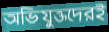
অভিযুক্তদেরই